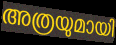
അത്രയുമായി